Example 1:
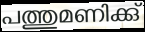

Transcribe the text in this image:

പത്തുമണിക്കു്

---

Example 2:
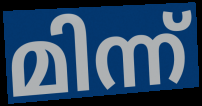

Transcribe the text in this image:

മിന്ന്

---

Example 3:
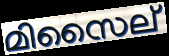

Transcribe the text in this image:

മിസൈല്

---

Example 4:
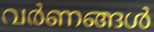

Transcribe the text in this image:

വർണങ്ങൾ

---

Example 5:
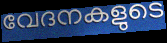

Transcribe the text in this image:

വേദനകളുടെ